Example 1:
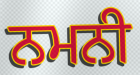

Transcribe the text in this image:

ਨਮਨੀ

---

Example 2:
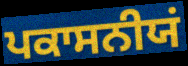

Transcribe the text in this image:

ਪਕਾਸਨੀਯਂ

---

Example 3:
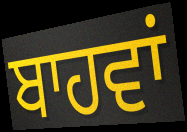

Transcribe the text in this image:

ਬਾਹਵਾਂ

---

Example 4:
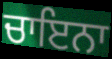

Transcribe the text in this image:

ਚਾਇਨਾ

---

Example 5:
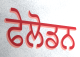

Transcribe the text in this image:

ਫੇਲੋਡਨ